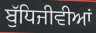
ਬੁੱਧਿਜੀਵੀਆਂ